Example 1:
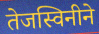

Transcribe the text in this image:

तेजस्विनीने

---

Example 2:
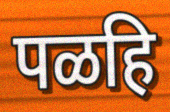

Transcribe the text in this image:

पळहि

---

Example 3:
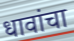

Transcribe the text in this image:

धावांचा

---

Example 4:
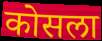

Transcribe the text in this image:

कोसला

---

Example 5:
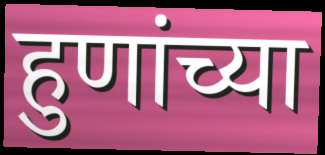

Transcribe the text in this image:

हुणांच्या